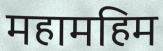
महामहिम